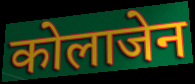
कोलाजेन